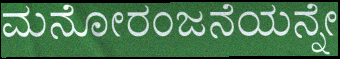
ಮನೋರಂಜನೆಯನ್ನೇ